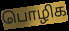
பொழிக